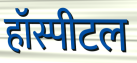
हॉस्पीटल